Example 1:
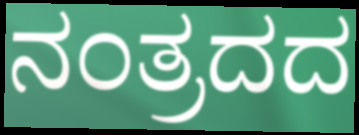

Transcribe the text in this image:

ನಂತ್ರದದ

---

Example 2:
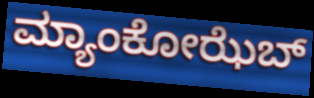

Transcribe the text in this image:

ಮ್ಯಾಂಕೋಝೆಬ್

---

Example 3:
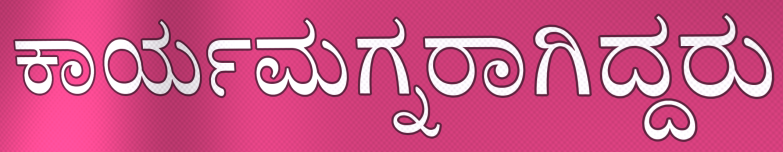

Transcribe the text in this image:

ಕಾರ್ಯಮಗ್ನರಾಗಿದ್ದರು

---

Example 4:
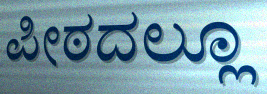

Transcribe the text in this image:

ಪೀಠದಲ್ಲೂ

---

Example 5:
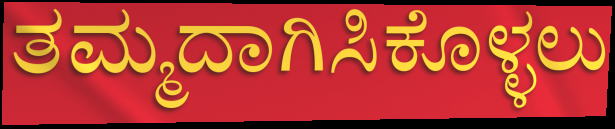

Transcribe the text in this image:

ತಮ್ಮದಾಗಿಸಿಕೊಳ್ಳಲು